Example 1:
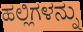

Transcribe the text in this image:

ಹಲ್ಲಿಗಳನ್ನು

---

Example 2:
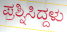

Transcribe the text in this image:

ಪ್ರಶ್ನಿಸಿದ್ದಳು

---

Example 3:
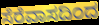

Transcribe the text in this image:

ಸೆರೆವಾಸದಿಂದ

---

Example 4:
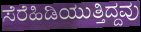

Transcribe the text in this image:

ಸೆರೆಹಿಡಿಯುತ್ತಿದ್ದವು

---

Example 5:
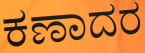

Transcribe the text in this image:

ಕಣಾದರ